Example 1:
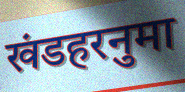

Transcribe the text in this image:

खंडहरनुमा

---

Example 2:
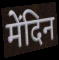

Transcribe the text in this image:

मेंदिन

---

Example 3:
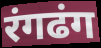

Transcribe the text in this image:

रंगढंग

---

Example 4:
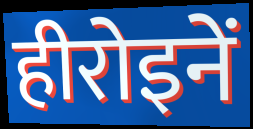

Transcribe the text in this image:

हीरोइनें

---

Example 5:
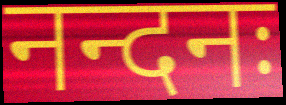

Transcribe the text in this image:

नन्दनः